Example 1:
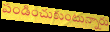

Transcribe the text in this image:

పండించుకుంటున్నారు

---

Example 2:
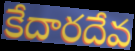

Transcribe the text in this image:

కేదారదేవ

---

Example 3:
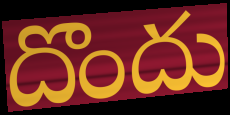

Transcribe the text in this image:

దొందు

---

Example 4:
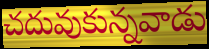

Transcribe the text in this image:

చదువుకున్నవాడు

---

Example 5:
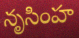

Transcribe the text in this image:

నృసింహ